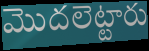
మొదలెట్టారు